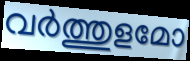
വർത്തുളമോ